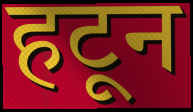
हटून